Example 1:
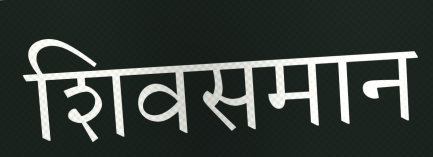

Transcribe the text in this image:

शिवसमान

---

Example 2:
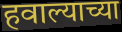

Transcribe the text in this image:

हवाल्याच्या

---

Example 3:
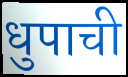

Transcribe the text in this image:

धुपाची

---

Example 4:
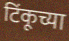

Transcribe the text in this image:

टिंकूच्या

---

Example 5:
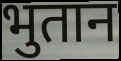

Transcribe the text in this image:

भुतान